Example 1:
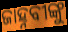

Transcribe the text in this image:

ଜାହ୍ନବୀଙ୍କୁ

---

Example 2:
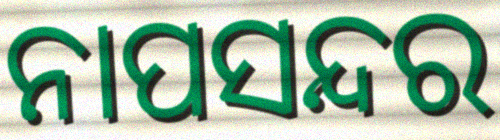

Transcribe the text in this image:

ନାପସନ୍ଦର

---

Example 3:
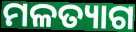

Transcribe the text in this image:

ମଳତ୍ୟାଗ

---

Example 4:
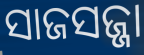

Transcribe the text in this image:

ସାଜସଜ୍ଜା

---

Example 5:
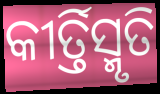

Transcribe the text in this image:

କୀର୍ତ୍ତିସ୍ମୃତି